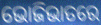
ଭୋଜିଭାତରେ